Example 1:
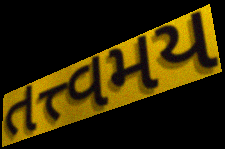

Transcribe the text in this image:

તત્ત્વમય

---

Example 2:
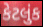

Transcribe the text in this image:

કેટલુંક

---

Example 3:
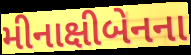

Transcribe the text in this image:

મીનાક્ષીબેનના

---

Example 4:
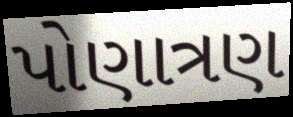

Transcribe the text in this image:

પોણાત્રણ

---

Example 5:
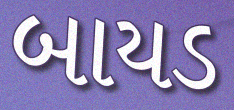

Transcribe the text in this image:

બાયડ